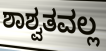
ಶಾಶ್ವತವಲ್ಲ